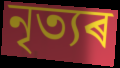
নৃত্যৰ